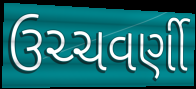
ઉચ્ચવર્ણી